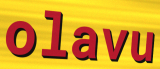
olavu